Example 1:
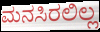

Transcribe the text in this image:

ಮನಸಿರಲಿಲ್ಲ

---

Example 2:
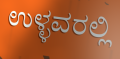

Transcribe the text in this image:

ಉಳ್ಳವರಲ್ಲಿ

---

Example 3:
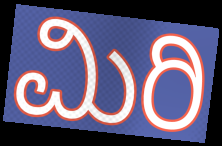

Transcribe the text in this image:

ಮಿರಿ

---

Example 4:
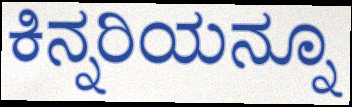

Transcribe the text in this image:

ಕಿನ್ನರಿಯನ್ನೂ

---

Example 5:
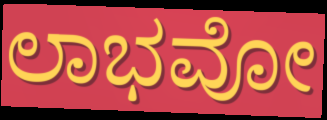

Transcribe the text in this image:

ಲಾಭವೋ